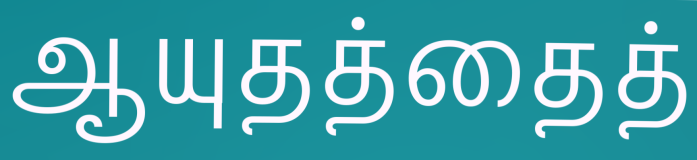
ஆயுதத்தைத்